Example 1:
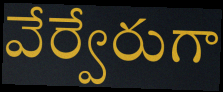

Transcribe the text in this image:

వేర్వేరుగా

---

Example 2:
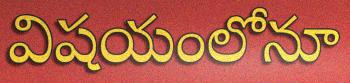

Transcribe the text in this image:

విషయంలోనూ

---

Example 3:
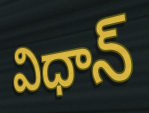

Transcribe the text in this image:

విధాన్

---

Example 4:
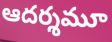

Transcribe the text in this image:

ఆదర్శమూ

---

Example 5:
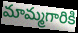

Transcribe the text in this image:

మామ్మగారికి